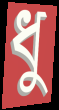
ধু